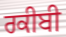
ਰਕੀਬੀ